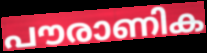
പൗരാണിക